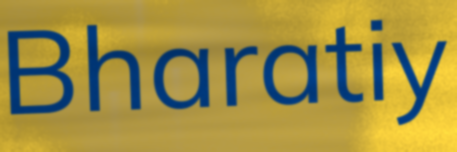
Bharatiy